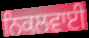
ਨਿਕਲਵਾਈ